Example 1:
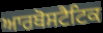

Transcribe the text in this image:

ਆਰਥੋਸਟੈਟਿਕ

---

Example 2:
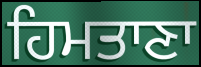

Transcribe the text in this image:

ਹਿਮਤਾਣਾ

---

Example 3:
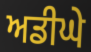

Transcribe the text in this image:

ਅਡੀਘੇ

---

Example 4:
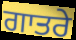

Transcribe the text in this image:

ਗਾਤਰੇ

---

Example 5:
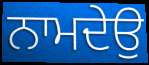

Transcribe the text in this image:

ਨਾਮਦੇਉ